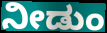
ನೀಡುಂ